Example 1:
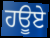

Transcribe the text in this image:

ਹਊਏ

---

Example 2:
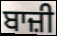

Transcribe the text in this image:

ਬਾਜ਼ੀ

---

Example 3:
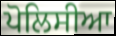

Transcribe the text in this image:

ਪੋਲਿਸੀਆ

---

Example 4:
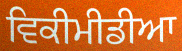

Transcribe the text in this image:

ਵਿਕੀਮੀਡੀਆ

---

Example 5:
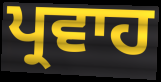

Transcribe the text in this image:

ਪ੍ਰਵਾਹ